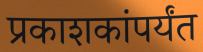
प्रकाशकांपर्यंत